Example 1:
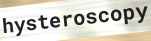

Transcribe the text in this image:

hysteroscopy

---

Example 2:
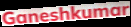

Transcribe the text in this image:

Ganeshkumar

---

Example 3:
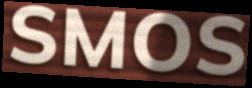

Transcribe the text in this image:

SMOS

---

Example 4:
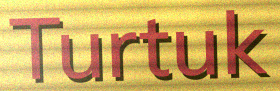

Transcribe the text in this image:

Turtuk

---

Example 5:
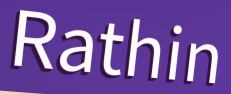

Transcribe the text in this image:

Rathin